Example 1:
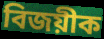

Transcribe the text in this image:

বিজয়ীক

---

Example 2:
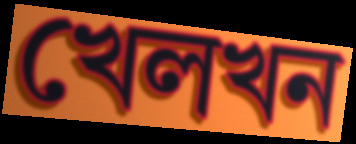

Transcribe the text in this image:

খেলখন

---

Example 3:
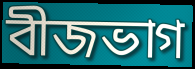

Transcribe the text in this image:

বীজভাগ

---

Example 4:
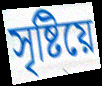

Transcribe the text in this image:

সৃষ্টিয়ে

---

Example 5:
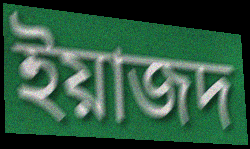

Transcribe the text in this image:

ইয়াজদ